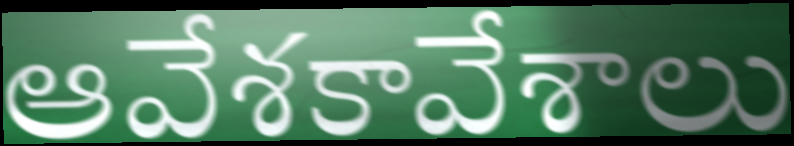
ఆవేశకావేశాలు